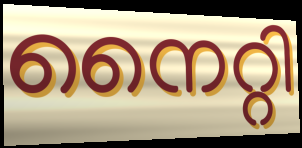
നൈറ്റി